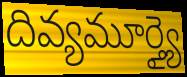
దివ్యమూర్త్యై